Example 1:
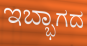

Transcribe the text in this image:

ಇಬ್ಭಾಗದ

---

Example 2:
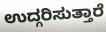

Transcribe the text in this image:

ಉದ್ಗರಿಸುತ್ತಾರೆ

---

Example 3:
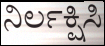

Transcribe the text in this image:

ನಿರ್ಲಕ್ಷಿಸಿ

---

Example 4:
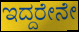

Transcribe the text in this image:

ಇದ್ದರೇನೇ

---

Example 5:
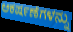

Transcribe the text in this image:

ಆಕರ್ಷಣೆಗಳನ್ನು